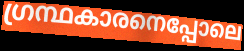
ഗ്രന്ഥകാരനെപ്പോലെ